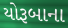
યોરૂબાના